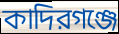
কাদিরগঞ্জে